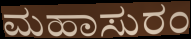
ಮಹಾಸುರಂ